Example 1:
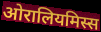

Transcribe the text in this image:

ओरालियमिस्स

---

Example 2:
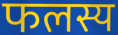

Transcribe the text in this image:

फलस्य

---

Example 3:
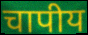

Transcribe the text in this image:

चापीय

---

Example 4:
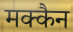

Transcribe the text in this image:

मक्कैन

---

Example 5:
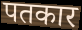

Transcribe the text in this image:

पतकार